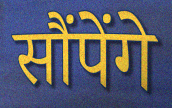
सौंपेंगे